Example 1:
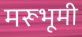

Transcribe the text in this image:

मरूभूमी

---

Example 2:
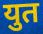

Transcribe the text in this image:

युत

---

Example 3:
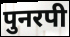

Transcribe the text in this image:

पुनरपी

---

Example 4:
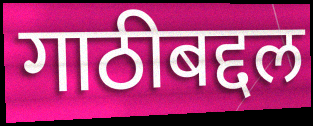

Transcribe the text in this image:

गाठीबद्दल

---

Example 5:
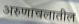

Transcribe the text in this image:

अरुणाचलातील